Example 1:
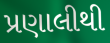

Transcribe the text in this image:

પ્રણાલીથી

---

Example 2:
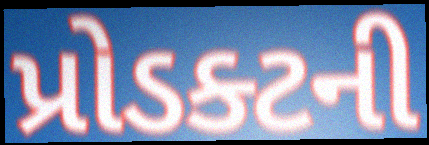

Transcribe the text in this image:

પ્રોડક્ટની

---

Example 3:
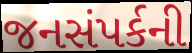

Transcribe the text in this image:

જનસંપર્કની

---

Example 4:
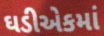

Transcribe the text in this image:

ઘડીએકમાં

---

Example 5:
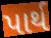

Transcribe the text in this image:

પાર્થ